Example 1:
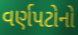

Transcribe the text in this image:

વર્ણપટોનો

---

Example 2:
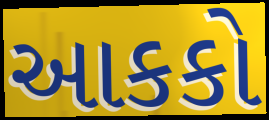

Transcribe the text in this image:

આકકો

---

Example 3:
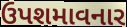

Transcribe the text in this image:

ઉપશમાવનાર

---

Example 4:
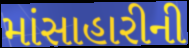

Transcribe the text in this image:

માંસાહારીની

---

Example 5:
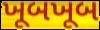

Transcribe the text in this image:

ખૂબખૂબ